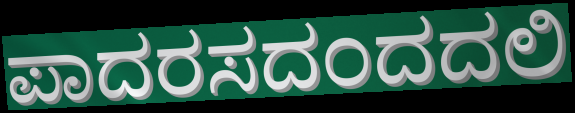
ಪಾದರಸದಂದದಲಿ